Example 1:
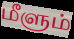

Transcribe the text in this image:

மீளும்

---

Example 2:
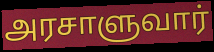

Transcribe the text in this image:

அரசாளுவார்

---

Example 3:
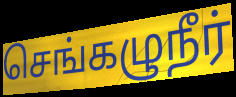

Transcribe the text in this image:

செங்கழுநீர்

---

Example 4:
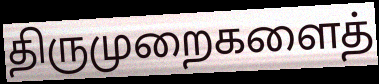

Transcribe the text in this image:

திருமுறைகளைத்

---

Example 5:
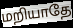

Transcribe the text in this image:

மறியாதே